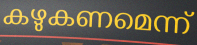
കഴുകണമെന്ന്